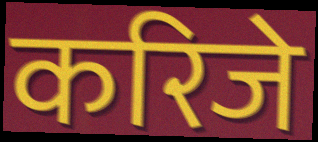
करिजे